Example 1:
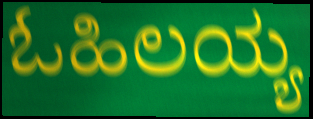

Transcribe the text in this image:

ಓಹಿಲಯ್ಯ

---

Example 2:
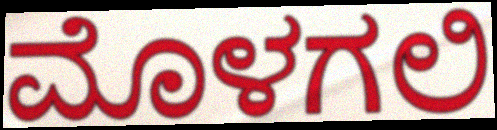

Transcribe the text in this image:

ಮೊಳಗಲಿ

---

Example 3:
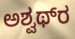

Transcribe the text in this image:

ಅಶ್ವಥ್‌ರ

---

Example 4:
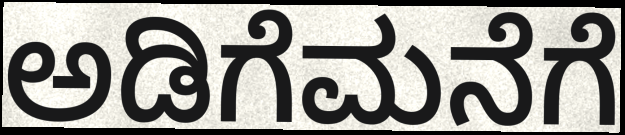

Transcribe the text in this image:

ಅಡಿಗೆಮನೆಗೆ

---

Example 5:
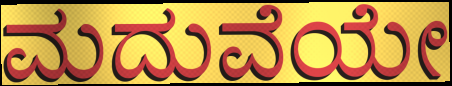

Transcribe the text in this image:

ಮದುವೆಯೇ